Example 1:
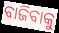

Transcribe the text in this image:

ବାଜିବାକୁ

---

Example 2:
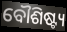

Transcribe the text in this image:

ବୌଶିଷ୍ଟ୍ୟ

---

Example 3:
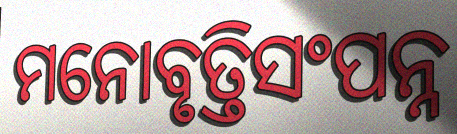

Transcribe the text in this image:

ମନୋବୃତ୍ତିସଂପନ୍ନ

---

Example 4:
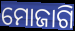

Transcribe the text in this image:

ମୋଜାଗି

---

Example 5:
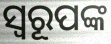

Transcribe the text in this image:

ସ୍ୱରୂପଙ୍କ